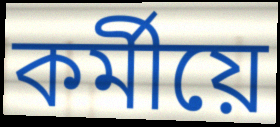
কৰ্মীয়ে